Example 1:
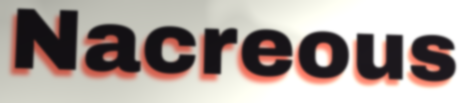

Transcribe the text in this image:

Nacreous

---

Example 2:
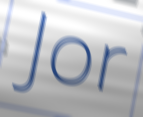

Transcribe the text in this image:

Jor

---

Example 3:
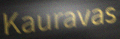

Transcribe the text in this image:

Kauravas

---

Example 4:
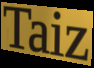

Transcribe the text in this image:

Taiz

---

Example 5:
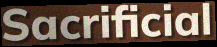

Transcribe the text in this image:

Sacrificial